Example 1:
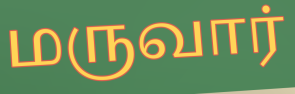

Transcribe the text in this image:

மருவார்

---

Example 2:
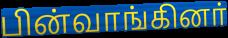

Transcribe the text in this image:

பின்வாங்கினர்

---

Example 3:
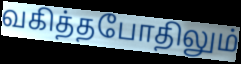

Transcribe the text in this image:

வகித்தபோதிலும்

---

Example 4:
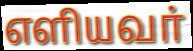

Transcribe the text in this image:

எளியவர்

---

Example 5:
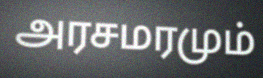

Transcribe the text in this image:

அரசமரமும்